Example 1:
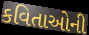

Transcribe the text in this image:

કવિતાઓની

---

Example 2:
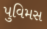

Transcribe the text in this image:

પુવિમસ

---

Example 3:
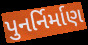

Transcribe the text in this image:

પુનર્નિર્માણ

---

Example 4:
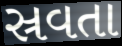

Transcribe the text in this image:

સ્રવતા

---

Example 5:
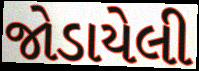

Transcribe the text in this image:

જોડાયેલી